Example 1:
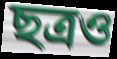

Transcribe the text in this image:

ছত্রও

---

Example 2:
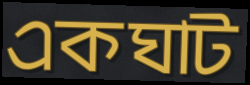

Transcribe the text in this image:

একঘাট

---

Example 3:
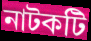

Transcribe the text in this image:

নাটকটি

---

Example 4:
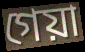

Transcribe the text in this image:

গেয়া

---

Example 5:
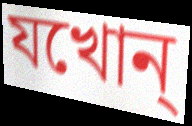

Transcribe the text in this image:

যখোন্